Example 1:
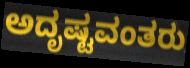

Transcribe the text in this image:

ಅದೃಷ್ಟವಂತರು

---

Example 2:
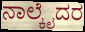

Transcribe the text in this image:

ನಾಲ್ಕೈದರ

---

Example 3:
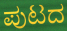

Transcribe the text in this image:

ಪುಟದ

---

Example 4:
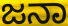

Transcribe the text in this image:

ಜನಾ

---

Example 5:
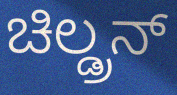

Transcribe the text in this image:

ಚಿಲ್ಡ್ರನ್